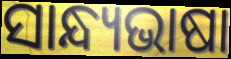
ସାନ୍ଧ୍ୟଭାଷା